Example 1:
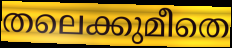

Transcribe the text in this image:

തലെക്കുമീതെ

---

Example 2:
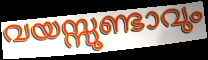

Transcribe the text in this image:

വയസ്സുണ്ടാവും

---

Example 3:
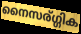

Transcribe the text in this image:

നൈസര്ഗ്ഗിക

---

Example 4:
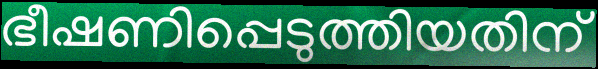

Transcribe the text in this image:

ഭീഷണിപ്പെടുത്തിയതിന്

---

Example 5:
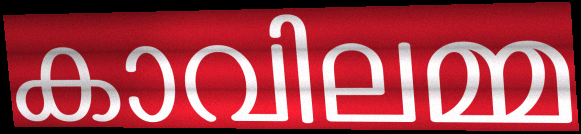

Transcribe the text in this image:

കാവിലമ്മ